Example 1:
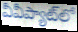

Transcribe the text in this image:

వీవీప్యాట్‌లో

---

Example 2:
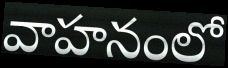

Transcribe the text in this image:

వాహనంలో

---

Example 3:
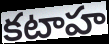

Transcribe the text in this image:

కటాహ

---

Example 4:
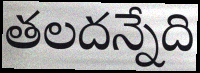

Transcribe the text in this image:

తలదన్నేది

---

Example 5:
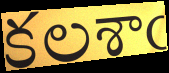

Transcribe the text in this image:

కలశాఁ